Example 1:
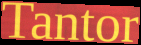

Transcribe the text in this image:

Tantor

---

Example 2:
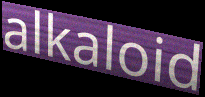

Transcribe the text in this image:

alkaloid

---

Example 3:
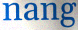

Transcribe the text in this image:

nang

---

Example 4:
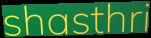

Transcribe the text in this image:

shasthri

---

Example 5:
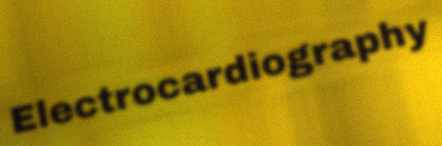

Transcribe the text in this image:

Electrocardiography